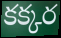
కక్కర